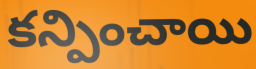
కన్పించాయి